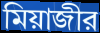
মিয়াজীর